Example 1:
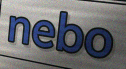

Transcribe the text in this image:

nebo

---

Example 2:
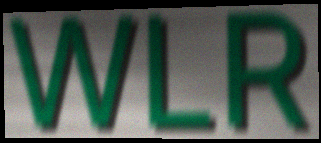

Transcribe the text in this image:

WLR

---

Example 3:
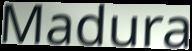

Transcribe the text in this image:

Madura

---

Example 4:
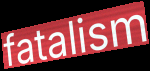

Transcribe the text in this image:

fatalism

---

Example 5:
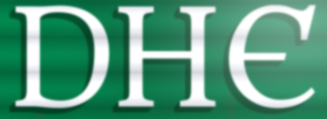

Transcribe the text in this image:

DHE